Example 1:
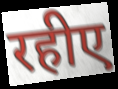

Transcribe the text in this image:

रहीए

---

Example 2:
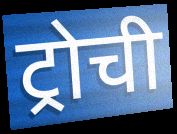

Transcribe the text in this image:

ट्रोची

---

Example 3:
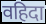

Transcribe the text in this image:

वहिदा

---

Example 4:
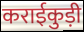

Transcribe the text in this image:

कराईकुड़ी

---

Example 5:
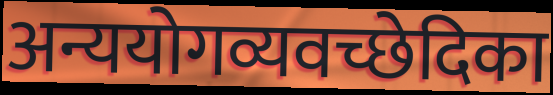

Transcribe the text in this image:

अन्ययोगव्यवच्छेदिका